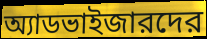
অ্যাডভাইজারদের